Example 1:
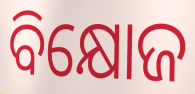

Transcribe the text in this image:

ବିକ୍ଷୋଜ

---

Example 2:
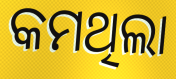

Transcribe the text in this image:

କମଥିଲା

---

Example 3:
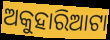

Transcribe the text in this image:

ଅକୁହାରିଆଟା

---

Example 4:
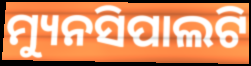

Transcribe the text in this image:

ମ୍ୟୁନସିପାଲଟି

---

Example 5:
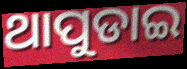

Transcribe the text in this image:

ଥାପୁଡାଇ